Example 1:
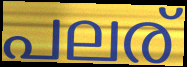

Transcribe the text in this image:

പലര്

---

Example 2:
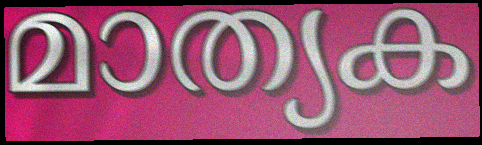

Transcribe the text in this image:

മാത്യക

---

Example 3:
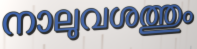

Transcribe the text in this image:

നാലുവശത്തും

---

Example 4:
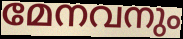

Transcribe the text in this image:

മേനവനും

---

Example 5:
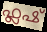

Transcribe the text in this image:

ഫ്ലഷ്